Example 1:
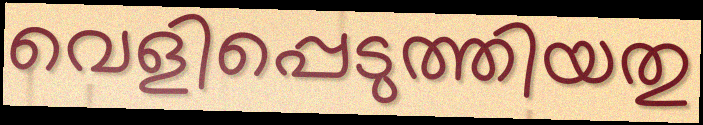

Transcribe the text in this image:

വെളിപ്പെടുത്തിയതു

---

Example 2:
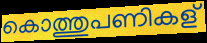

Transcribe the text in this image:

കൊത്തുപണികള്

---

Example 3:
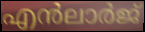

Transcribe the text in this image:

എൻലാർജ്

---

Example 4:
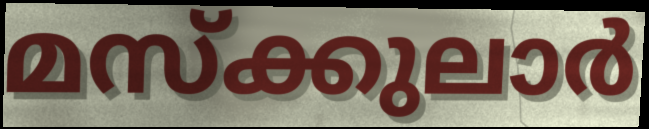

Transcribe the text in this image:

മസ്ക്കുലാർ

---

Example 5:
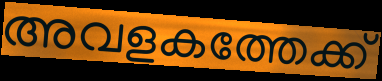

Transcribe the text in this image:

അവളകത്തേക്ക്